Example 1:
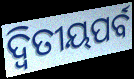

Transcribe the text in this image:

ଦ୍ୱିତୀୟପର୍ବ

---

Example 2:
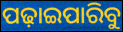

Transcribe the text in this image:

ପଢ଼ାଇପାରିବୁ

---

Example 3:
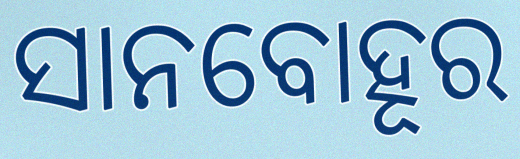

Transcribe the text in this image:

ସାନବୋହୂର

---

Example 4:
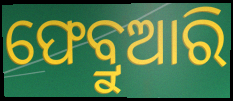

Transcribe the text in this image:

ଫେବ୍ରୁଆରି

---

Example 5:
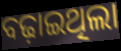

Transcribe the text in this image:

ବଢ଼ାଇଥିଲା